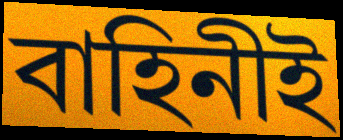
বাহিনীই